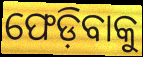
ଫେଡ଼ିବାକୁ